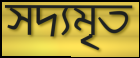
সদ্যমৃত